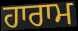
ਹਾਰਾਮ